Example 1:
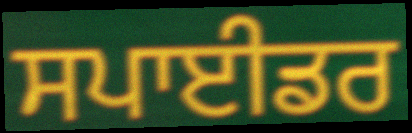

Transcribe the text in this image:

ਸਪਾਈਡਰ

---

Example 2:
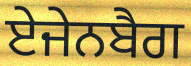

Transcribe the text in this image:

ਏਜੇਨਬੈਗ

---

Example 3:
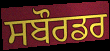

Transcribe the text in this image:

ਸਬੌਰਡਰ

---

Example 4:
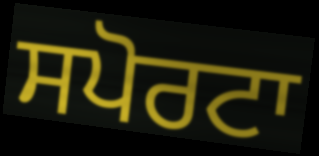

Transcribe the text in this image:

ਸਪੋਰਟਾ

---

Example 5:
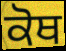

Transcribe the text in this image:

ਕੋਥ